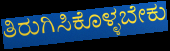
ತಿರುಗಿಸಿಕೊಳ್ಳಬೇಕು